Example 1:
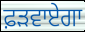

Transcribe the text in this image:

ਫ਼ੜਵਾਏਗਾ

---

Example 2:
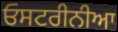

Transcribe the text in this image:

ਓਸਟਰੀਨੀਆ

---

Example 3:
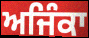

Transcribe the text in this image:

ਅਜਿੰਕਾ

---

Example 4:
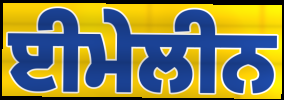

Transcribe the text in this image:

ਈਮੇਲੀਨ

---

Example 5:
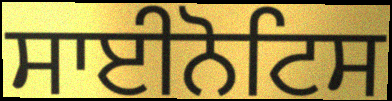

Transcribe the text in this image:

ਸਾਈਨੋਟਿਸ